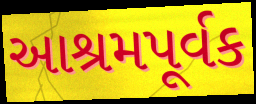
આશ્રમપૂર્વક